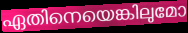
ഏതിനെയെങ്കിലുമോ